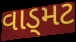
વાડ્મટ